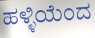
ಹಳ್ಳಿಯೆಂದ